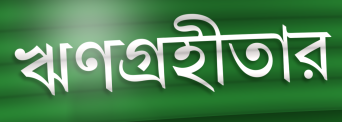
ঋণগ্রহীতার